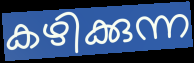
കഴിക്കുന്ന